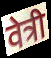
वेत्री